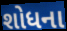
શોધના